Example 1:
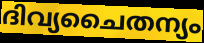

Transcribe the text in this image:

ദിവ്യചൈതന്യം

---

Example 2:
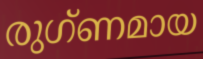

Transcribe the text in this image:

രുഗ്ണമായ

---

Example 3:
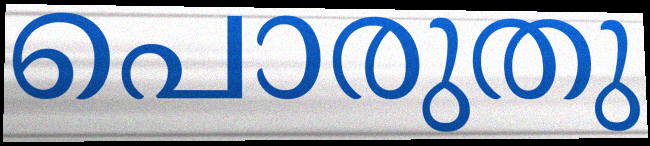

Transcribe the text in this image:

പൊരുതു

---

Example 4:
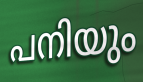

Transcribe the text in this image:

പനിയും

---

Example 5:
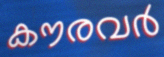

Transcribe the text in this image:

കൗരവർ